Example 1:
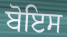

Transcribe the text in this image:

ਬੋਇਸ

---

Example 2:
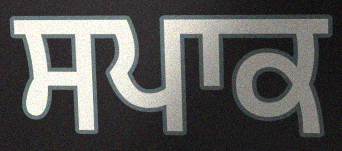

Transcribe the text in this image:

ਸਪਾਕ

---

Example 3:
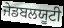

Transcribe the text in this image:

ਜੇਡਬਲਯੂਟੀ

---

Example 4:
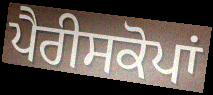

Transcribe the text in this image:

ਪੈਰੀਸਕੋਪਾਂ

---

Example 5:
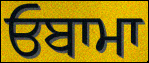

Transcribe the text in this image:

ਓਬਾਮਾ